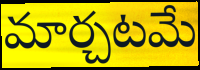
మార్చటమే